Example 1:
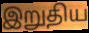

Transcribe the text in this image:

இறுதிய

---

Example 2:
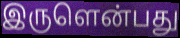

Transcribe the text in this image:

இருளென்பது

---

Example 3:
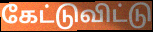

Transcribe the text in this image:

கேட்டுவிட்டு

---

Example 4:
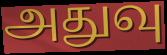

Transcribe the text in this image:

அதுவு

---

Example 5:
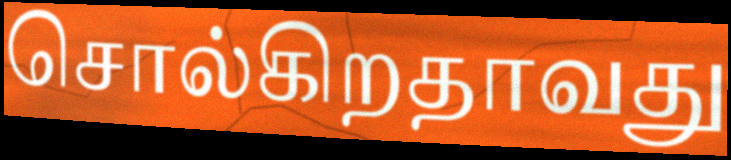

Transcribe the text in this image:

சொல்கிறதாவது